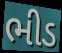
ભીડ